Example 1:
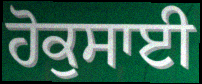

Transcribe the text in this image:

ਹੋਕੁਸਾਈ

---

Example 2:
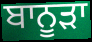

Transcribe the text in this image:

ਬਾਨੂੜਾ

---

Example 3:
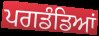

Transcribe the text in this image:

ਪਗਡੰਡਿਆਂ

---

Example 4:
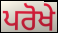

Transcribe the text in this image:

ਪਰੋਖੇ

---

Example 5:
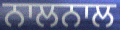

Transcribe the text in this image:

ਨਾਲਨਾਲ